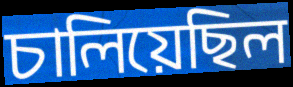
চালিয়েছিল